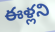
ఈళ్లని